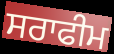
ਸਰਾਫੀਮ